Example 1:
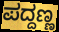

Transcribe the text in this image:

ಪದ್ದಣ್ಣ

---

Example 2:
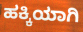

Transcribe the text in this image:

ಹಕ್ಕಿಯಾಗಿ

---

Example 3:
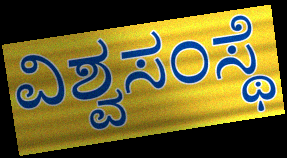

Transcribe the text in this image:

ವಿಶ್ವಸಂಸ್ಥೆ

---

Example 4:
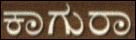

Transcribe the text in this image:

ಕಾಗುರಾ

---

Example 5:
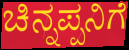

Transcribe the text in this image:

ಚಿನ್ನಪ್ಪನಿಗೆ